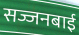
सज्जनबाई